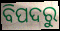
ବିପଦରୁ